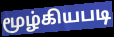
மூழ்கியபடி